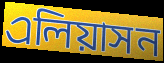
এলিয়াসন